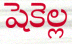
షెకెల్ల